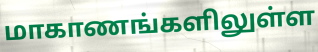
மாகாணங்களிலுள்ள